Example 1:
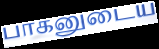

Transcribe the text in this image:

பாகனுடைய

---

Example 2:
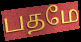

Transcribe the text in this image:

பதமே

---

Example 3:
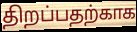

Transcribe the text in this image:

திறப்பதற்காக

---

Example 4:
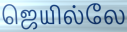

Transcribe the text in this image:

ஜெயில்லே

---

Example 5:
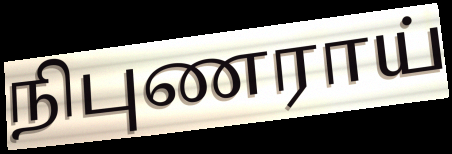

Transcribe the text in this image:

நிபுணராய்